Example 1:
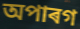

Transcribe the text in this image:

অপাৰগ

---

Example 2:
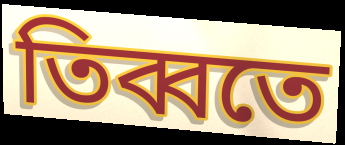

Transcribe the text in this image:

তিব্বতে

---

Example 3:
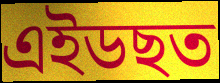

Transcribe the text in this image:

এইডছত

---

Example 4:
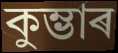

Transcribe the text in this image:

কুম্ভাৰ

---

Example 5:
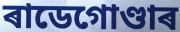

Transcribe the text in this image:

ৰাডেগোণ্ডাৰ